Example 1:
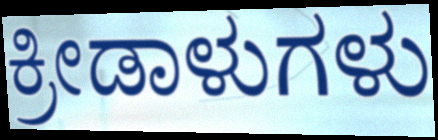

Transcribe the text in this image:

ಕ್ರೀಡಾಳುಗಳು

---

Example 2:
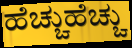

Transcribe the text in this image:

ಹೆಚ್ಚುಹೆಚ್ಚು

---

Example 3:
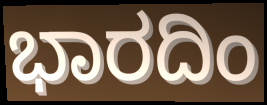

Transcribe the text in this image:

ಭಾರದಿಂ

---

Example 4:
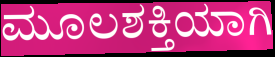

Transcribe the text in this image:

ಮೂಲಶಕ್ತಿಯಾಗಿ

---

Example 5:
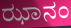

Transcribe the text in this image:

ಝಾನಂ